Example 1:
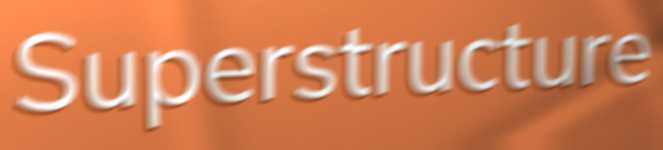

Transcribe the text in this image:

Superstructure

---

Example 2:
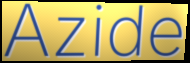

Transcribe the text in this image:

Azide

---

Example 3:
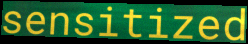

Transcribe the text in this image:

sensitized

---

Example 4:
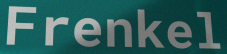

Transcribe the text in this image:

Frenkel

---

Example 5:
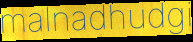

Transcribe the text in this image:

malnadhudgi